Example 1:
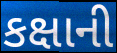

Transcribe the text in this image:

કક્ષાની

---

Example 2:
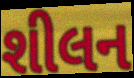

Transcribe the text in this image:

શીલન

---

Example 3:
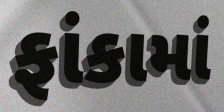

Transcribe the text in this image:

ફાંકામાં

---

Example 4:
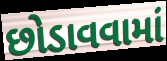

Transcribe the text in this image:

છોડાવવામાં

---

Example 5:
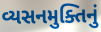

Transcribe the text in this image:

વ્યસનમુક્તિનું